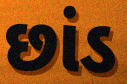
છાંડ